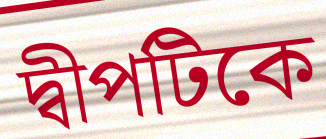
দ্বীপটিকে